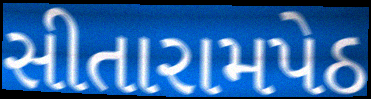
સીતારામપેઠ